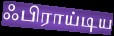
ஃபிராய்டிய